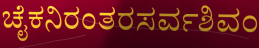
ಚೈಕನಿರಂತರಸರ್ವಶಿವಂ